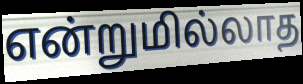
என்றுமில்லாத